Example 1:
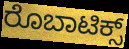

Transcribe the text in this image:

ರೊಬಾಟಿಕ್ಸ್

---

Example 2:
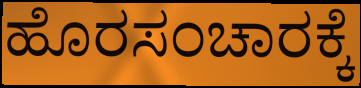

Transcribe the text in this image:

ಹೊರಸಂಚಾರಕ್ಕೆ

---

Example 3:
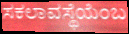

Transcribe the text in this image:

ಸಕಲಾವಸ್ಥೆಯೆಂಬ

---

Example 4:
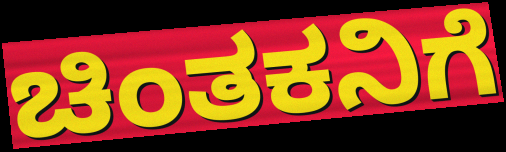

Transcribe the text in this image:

ಚಿಂತಕನಿಗೆ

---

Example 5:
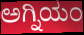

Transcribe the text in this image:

ಅಗ್ನಿಯಂ